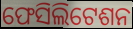
ଫେସିଲିଟେଶନ